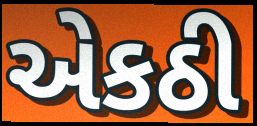
એકઠી